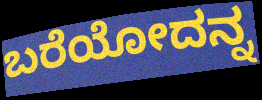
ಬರೆಯೋದನ್ನ